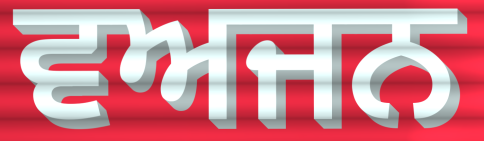
ਵਅਜਨ